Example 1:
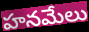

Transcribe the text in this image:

హనమేలు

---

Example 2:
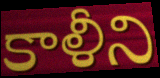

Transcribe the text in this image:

కాళీని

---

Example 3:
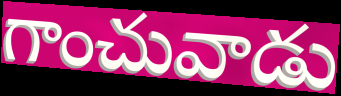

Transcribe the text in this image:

గాంచువాడు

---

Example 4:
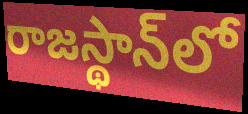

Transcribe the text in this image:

రాజస్థాన్‌లో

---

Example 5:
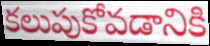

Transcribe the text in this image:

కలుపుకోవడానికి